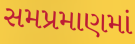
સમપ્રમાણમાં